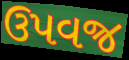
ઉપવજ્ર